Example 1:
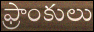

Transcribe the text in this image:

ఫ్రాంకులు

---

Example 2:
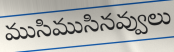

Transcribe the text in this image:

ముసిముసినవ్వులు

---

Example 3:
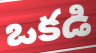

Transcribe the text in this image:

ఒకడి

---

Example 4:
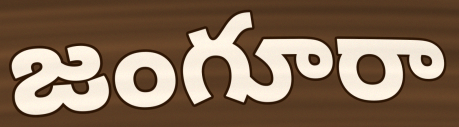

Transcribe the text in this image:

జంగూరా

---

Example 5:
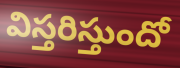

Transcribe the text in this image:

విస్తరిస్తుందో